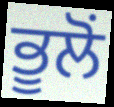
ਭੂਲੋਂ